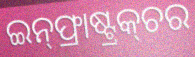
ଇନ୍‌ଫ୍ରାଷ୍ଟ୍ରକ୍‌ଚର